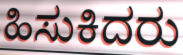
ಹಿಸುಕಿದರು